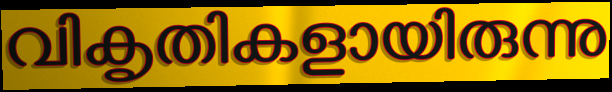
വികൃതികളായിരുന്നു